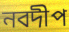
নবদীপ